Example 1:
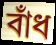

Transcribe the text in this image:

বাঁধ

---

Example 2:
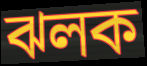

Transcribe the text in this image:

ঝলক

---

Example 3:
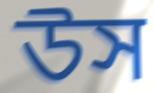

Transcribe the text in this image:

উস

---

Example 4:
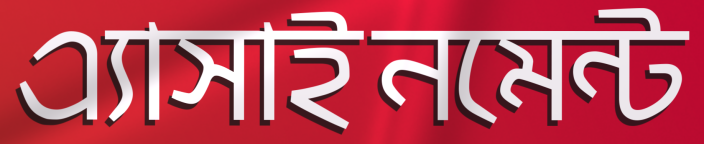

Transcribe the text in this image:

এ্যাসাইনমেন্ট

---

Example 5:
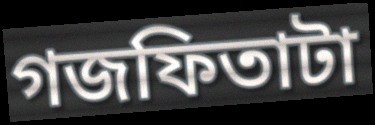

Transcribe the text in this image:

গজফিতাটা